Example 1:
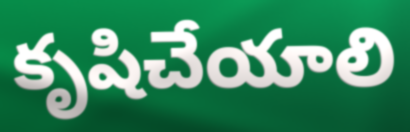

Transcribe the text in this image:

కృషిచేయాలి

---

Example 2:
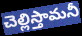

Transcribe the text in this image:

చెల్లిస్తామనీ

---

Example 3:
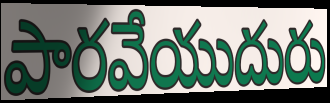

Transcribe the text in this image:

పారవేయుదురు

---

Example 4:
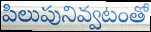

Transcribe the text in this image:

పిలుపునివ్వటంతో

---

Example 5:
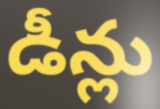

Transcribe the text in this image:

డీన్లు